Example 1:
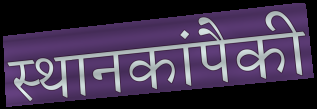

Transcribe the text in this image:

स्थानकांपैकी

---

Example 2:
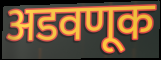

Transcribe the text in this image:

अडवणूक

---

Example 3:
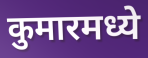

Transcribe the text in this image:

कुमारमध्ये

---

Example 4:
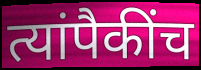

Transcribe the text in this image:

त्यांपैकींच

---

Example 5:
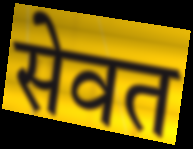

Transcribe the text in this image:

सेवत